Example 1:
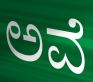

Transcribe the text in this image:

ಅವೆ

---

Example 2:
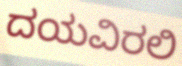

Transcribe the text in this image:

ದಯವಿರಲಿ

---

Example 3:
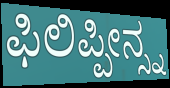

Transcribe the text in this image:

ಫಿಲಿಪ್ಪೀನ್ಸ್ನ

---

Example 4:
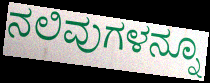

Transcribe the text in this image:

ನಲಿವುಗಳನ್ನೂ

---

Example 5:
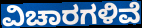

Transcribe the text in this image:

ವಿಚಾರಗಳಿವೆ